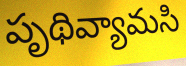
పృథివ్యామసి